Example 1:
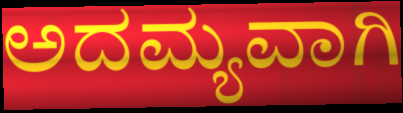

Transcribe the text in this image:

ಅದಮ್ಯವಾಗಿ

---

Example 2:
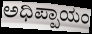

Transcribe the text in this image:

ಅಧಿಪ್ಪಾಯಂ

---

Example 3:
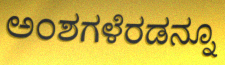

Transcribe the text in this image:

ಅಂಶಗಳೆರಡನ್ನೂ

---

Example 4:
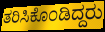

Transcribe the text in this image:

ತರಿಸಿಕೊಂಡಿದ್ದರು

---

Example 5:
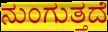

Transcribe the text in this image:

ನುಂಗುತ್ತದೆ